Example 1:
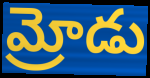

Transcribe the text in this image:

మ్రోడు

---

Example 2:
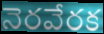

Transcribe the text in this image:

నెరవేరక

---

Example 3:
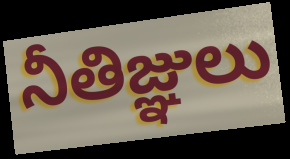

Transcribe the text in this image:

నీతిజ్ఞులు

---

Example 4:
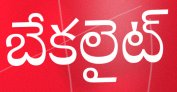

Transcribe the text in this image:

బేకలైట్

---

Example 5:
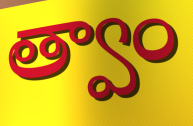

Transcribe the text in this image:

త్వాం